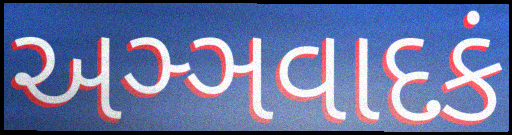
અઞ્ઞવાદકં